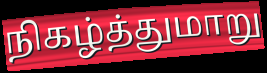
நிகழ்த்துமாறு